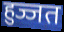
हुज्जत